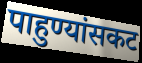
पाहुण्यांसकट